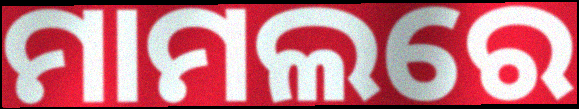
ମାମଲରେ